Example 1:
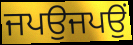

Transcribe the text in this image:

ਜਪਉਜਪਉਂ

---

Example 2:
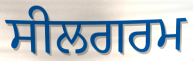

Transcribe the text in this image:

ਸੀਲਗਰਮ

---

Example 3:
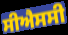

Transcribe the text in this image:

ਸੀਐਸਸੀ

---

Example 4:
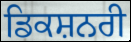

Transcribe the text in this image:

ਡਿਕਸ਼ਨਰੀ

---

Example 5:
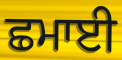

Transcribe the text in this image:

ਛਮਾਈ